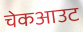
चेकआउट